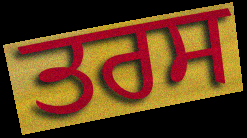
ਤਰਸ